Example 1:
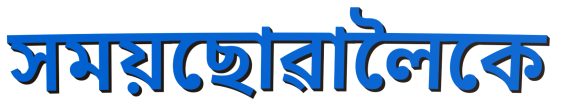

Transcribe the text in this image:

সময়ছোৱালৈকে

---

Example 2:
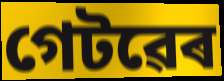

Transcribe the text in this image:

গেটৱেৰ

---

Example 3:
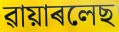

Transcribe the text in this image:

ৱায়াৰলেছ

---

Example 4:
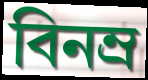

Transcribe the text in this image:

বিনম্ৰ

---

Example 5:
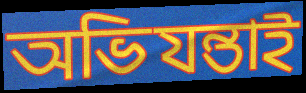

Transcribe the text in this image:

অভিযন্তাই